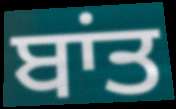
ਬਾਂਤ